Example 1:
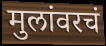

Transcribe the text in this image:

मुलांवरचं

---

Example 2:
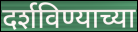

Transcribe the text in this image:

दर्शविण्याच्या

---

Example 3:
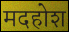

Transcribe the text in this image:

मदहोश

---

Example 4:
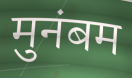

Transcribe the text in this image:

मुनंबम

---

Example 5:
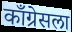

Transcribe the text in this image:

काँग्रेसला